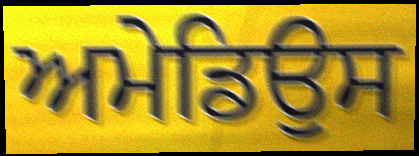
ਅਮੇਡਿਉਸ